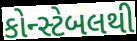
કોન્સ્ટેબલથી